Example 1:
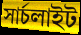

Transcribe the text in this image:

সার্চলাইট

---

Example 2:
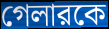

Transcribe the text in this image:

গেলারকে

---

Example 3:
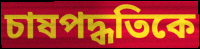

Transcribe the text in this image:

চাষপদ্ধতিকে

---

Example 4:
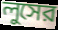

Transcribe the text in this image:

লুসের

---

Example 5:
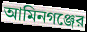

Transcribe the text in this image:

আমিনগঞ্জের